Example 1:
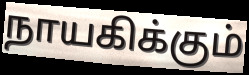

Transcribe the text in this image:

நாயகிக்கும்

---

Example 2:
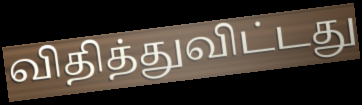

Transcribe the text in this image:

விதித்துவிட்டது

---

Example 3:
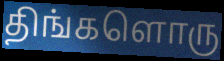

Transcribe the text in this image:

திங்களொரு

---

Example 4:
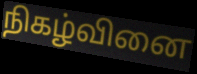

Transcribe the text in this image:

நிகழ்வினை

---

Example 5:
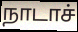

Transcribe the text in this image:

நாடாச்